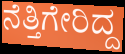
ನೆತ್ತಿಗೇರಿದ್ದ